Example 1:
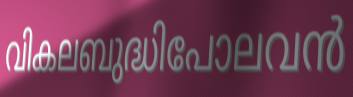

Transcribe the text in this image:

വികലബുദ്ധിപോലവൻ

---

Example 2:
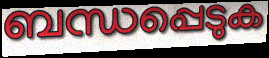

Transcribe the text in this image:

ബന്ധപ്പെടുക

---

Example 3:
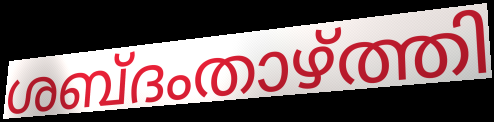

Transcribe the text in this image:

ശബ്ദംതാഴ്ത്തി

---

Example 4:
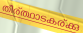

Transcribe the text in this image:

തീര്ത്ഥാടകര്ക്കു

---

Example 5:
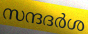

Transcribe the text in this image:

സന്ദദർശ